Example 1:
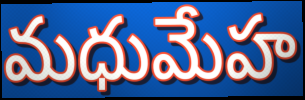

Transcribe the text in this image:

మధుమేహ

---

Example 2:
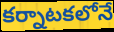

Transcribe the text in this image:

కర్నాటకలోనే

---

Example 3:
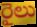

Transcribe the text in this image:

రైలు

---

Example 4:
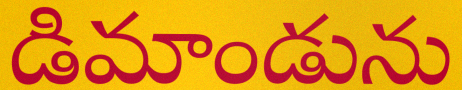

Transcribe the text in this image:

డిమాండును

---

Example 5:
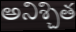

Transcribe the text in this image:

అనిశ్చిత